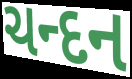
ચન્દન